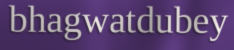
bhagwatdubey